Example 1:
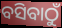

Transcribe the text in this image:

ବସିବାଠୁଁ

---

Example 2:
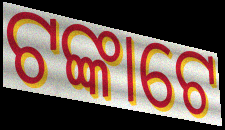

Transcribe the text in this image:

ଟଙ୍କାଟେ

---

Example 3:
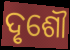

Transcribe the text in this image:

ଦୃଶୌ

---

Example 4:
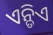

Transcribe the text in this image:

ଏନ୍ଡିଏ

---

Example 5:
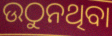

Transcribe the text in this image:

ଉଠୁନଥିବା